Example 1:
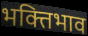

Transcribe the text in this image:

भक्तिभाव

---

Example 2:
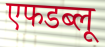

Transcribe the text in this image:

एफडब्लू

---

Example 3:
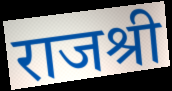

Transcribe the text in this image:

राजश्री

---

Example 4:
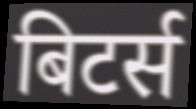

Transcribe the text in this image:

बिटर्स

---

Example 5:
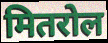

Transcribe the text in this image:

मितरोल